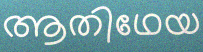
ആതിഥേയ